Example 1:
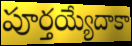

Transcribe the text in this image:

పూర్తయ్యేదాకా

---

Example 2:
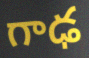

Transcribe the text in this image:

గాఢ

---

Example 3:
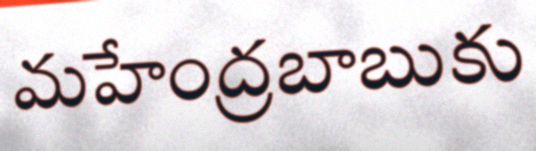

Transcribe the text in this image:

మహేంద్రబాబుకు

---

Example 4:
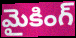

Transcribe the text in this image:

మైకింగ్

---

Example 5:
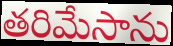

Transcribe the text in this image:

తరిమేసాను